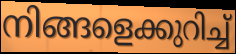
നിങ്ങളെക്കുറിച്ച്